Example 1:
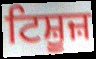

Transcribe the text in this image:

ਟਿਸ਼ੂਜ਼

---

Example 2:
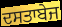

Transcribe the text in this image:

ਦਸਤਾਬੇਜ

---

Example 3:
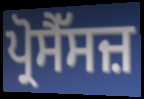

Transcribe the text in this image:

ਪ੍ਰੋਸੈੱਸਜ਼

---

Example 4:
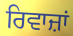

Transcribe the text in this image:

ਰਿਵਾਜ਼ਾਂ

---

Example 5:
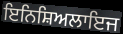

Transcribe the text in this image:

ਇਨਿਸ਼ਿਅਲਾਇਜ